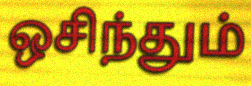
ஒசிந்தும்